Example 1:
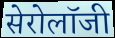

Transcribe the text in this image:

सेरोलॉजी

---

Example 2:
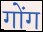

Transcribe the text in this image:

गोंग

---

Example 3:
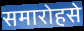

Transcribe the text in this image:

समारोहसे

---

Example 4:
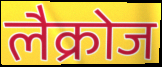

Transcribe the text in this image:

लैक्रोज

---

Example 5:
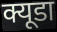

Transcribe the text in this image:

क्यूडा